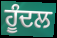
ਹੂੰਦਲ